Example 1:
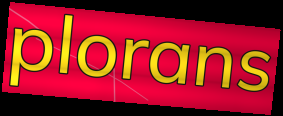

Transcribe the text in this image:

plorans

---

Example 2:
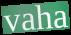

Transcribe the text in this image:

vaha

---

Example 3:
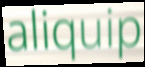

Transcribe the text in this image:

aliquip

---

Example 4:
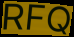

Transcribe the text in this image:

RFQ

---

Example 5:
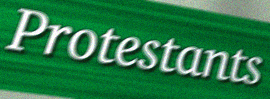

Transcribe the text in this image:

Protestants